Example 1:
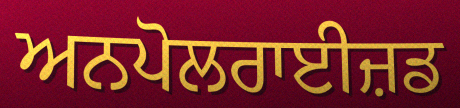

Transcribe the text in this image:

ਅਨਪੋਲਰਾਈਜ਼ਡ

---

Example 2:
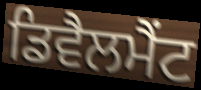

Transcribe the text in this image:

ਡਿਵੈਲਮੈਂਟ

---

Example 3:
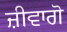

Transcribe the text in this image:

ਜ਼ੀਵਾਗੋ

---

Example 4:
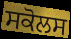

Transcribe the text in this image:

ਸਕੋਲਸ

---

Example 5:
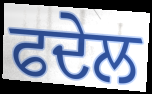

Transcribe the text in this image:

ਫਦੇਲ